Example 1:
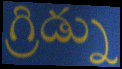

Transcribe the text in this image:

గ్రిడ్ను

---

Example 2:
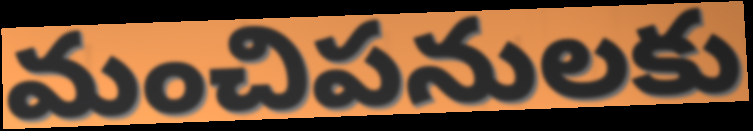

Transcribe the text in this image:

మంచిపనులకు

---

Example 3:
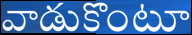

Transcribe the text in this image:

వాడుకొంటూ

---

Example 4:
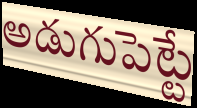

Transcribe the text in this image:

అడుగుపెట్టే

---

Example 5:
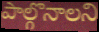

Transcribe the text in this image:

పాల్గొనాలని